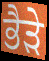
ਭੈਡ਼ੇ